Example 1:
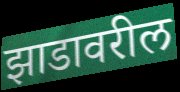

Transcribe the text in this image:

झाडावरील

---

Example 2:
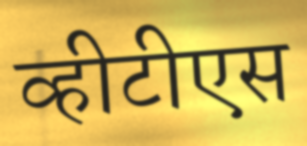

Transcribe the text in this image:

व्हीटीएस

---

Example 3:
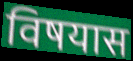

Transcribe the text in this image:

विषयास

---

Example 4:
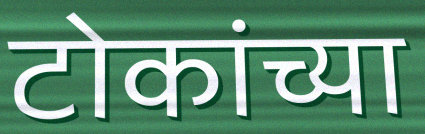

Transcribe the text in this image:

टोकांच्या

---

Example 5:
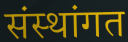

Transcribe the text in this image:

संस्थांगत